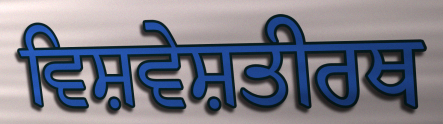
ਵਿਸ਼ਵੇਸ਼ਤੀਰਥ